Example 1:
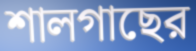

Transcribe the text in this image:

শালগাছের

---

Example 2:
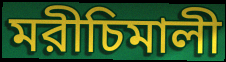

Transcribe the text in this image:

মরীচিমালী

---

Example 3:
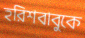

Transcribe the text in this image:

হরিশবাবুকে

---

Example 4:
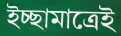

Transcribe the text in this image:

ইচ্ছামাত্রেই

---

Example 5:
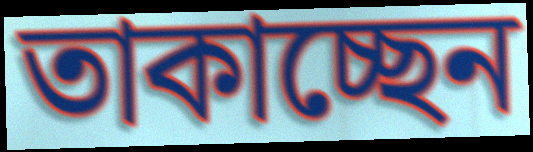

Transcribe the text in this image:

তাকাচ্ছেন